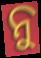
ନୁ